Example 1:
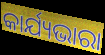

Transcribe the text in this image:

କାର୍ଯ୍ୟଭାରା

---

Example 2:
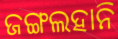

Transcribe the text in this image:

ଜଙ୍ଗଲହାନି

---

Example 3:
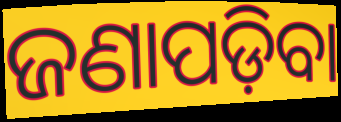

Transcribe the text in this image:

ଜଣାପଡ଼ିବା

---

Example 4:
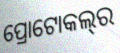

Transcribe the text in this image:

ପ୍ରୋଟୋକଲ୍‌ର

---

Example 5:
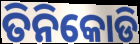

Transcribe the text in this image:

ତିନିକୋଡି